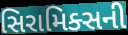
સિરામિક્સની